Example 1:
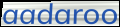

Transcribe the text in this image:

aadaroo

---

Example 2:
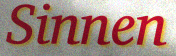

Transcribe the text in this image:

Sinnen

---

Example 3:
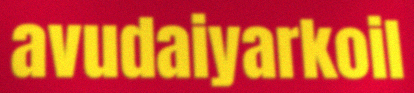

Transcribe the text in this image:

avudaiyarkoil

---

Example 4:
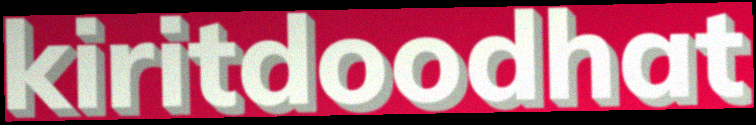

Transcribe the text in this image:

kiritdoodhat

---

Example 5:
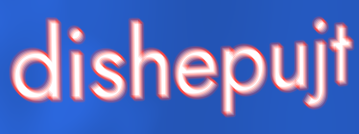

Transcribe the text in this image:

dishepujt